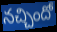
నచ్చిందో